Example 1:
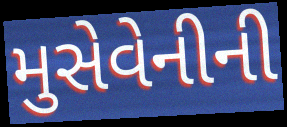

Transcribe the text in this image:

મુસેવેનીની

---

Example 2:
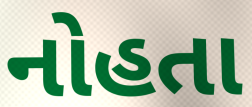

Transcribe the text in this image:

નોહતા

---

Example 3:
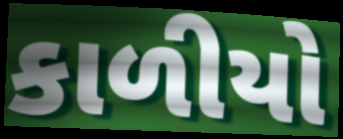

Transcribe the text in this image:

કાળીયો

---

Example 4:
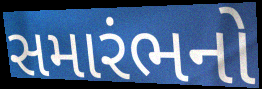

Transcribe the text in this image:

સમારંભનો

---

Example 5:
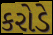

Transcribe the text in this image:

કરોડે